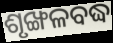
ଶୃଙ୍ଖଳବଦ୍ଧ